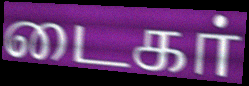
டைகர்